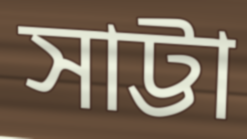
সাট্টা